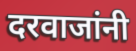
दरवाजांनी